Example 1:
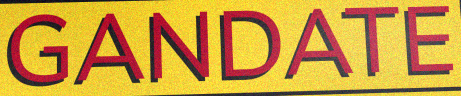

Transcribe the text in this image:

GANDATE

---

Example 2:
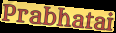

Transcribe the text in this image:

Prabhatai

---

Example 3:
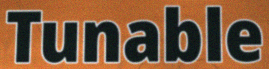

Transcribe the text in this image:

Tunable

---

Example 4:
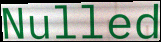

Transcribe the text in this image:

Nulled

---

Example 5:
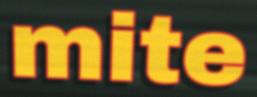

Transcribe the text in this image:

mite